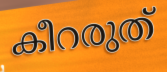
കീറരുത്